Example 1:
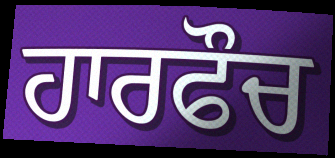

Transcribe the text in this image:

ਹਾਰਫੌਚ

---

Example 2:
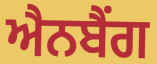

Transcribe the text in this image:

ਐਨਬੈਂਗ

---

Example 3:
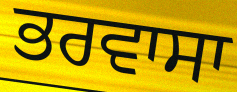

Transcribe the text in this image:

ਭਰਵਾਸਾ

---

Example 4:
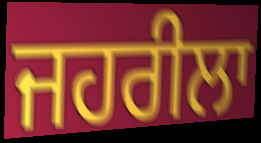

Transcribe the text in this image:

ਜਹਰੀਲਾ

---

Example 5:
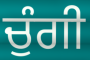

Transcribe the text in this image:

ਚੁੰਗੀ